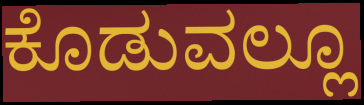
ಕೊಡುವಲ್ಲೂ